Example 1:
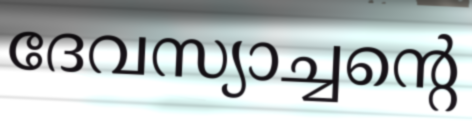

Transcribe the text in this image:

ദേവസ്യാച്ചന്റെ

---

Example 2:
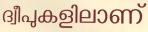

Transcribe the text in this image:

ദ്വീപുകളിലാണ്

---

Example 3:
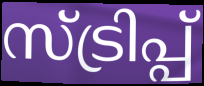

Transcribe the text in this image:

സ്ട്രിപ്പ്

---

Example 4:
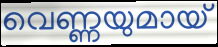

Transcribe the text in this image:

വെണ്ണയുമായ്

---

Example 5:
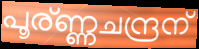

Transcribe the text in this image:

പൂര്ണ്ണചന്ദ്രന്